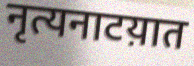
नृत्यनाटय़ात